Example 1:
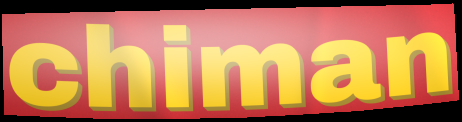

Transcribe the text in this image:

chiman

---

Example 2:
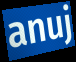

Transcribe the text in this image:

anuj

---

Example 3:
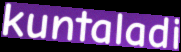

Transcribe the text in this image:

kuntaladi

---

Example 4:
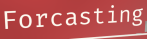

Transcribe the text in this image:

Forcasting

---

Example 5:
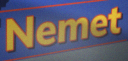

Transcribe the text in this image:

Nemet